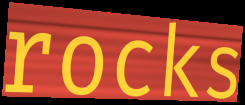
rocks